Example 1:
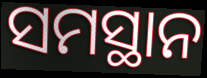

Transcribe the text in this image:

ସମସ୍ଥାନ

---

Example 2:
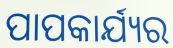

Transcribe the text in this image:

ପାପକାର୍ଯ୍ୟର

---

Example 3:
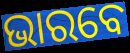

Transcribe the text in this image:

ଭାରବେ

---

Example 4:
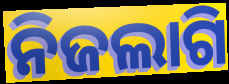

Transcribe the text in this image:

ନିଜଲାଗି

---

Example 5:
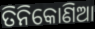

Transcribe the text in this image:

ତିନିକୋଣିଆ